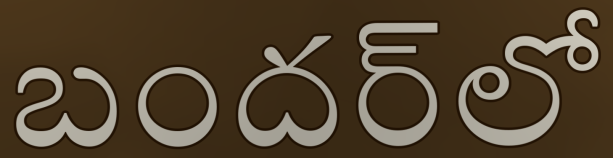
బందర్‌లో